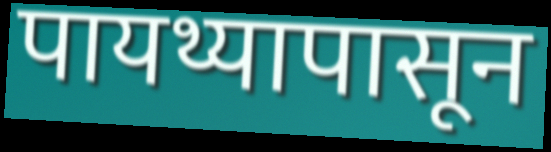
पायथ्यापासून